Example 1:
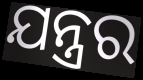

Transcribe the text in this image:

ଯନ୍ତ୍ରର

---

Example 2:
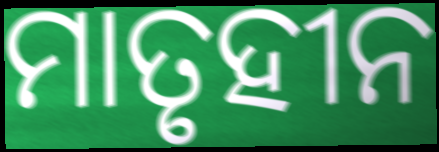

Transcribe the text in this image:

ମାତୃହୀନ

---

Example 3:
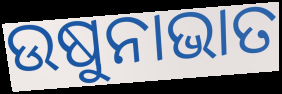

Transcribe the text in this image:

ଉଷୁନାଭାତ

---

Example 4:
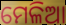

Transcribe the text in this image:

ମେଳିଆ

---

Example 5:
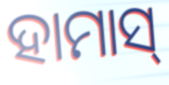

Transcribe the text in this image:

ହାମାସ୍